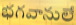
భగవానులే